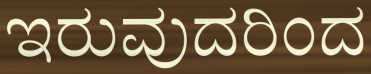
ಇರುವುದರಿಂದ